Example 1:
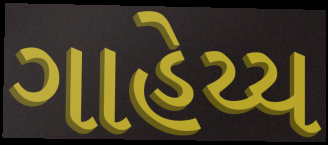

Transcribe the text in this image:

ગાહેય્ય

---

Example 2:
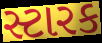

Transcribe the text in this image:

સ્ટારક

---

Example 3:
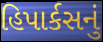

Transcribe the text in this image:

હિપાર્કસનું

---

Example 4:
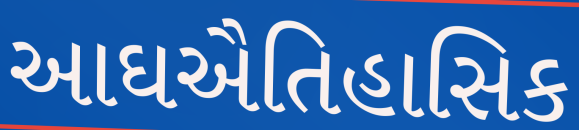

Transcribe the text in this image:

આઘઐતિહાસિક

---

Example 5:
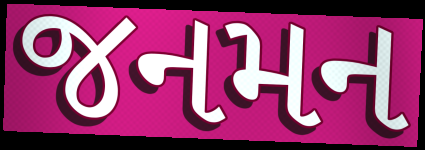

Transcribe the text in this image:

જનમન